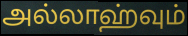
அல்லாஹ்வும்